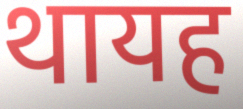
थायह